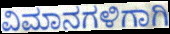
ವಿಮಾನಗಳಿಗಾಗಿ